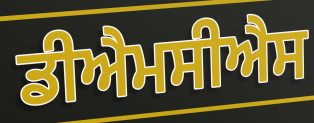
ਡੀਐਮਸੀਐਸ